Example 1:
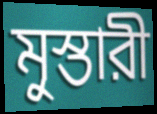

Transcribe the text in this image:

মুস্তারী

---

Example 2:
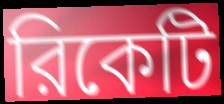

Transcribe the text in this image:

রিকেটি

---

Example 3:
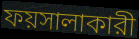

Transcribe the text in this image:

ফয়সালাকারী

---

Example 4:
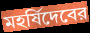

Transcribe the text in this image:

মহর্ষিদেবের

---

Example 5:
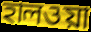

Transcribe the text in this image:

হালওয়া